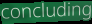
concluding